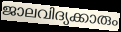
ജാലവിദ്യക്കാരും